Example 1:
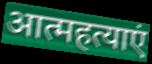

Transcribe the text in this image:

आत्महत्याएं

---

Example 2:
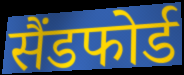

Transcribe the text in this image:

सैंडफोर्ड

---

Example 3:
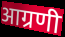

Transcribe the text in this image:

आग्रणी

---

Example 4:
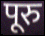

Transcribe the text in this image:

पूरु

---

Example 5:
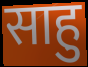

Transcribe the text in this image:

साहु